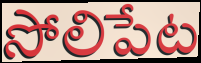
సోలిపేట